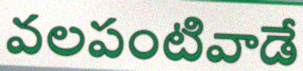
వలపంటివాడే